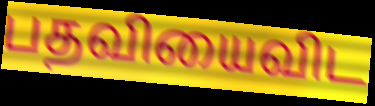
பதவியைவிட